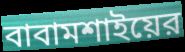
বাবামশাইয়ের